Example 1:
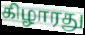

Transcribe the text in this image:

கிழாரது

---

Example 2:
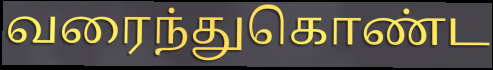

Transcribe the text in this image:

வரைந்துகொண்ட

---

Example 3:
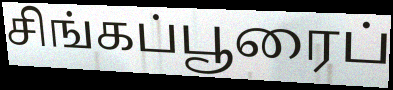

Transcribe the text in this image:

சிங்கப்பூரைப்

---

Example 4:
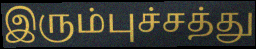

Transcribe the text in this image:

இரும்புச்சத்து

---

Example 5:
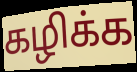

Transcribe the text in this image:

கழிக்க